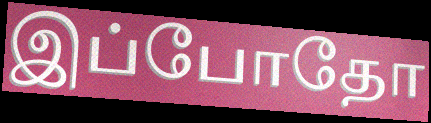
இப்போதோ